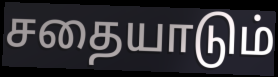
சதையாடும்